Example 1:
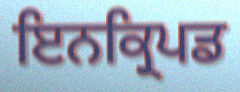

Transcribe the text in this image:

ਇਨਕ੍ਰਿਪਡ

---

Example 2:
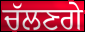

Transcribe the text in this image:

ਚੱਲਣਗੇ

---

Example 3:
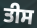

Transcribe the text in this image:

ਤੀਸ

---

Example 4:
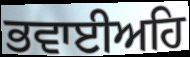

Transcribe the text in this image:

ਭਵਾਈਅਹਿ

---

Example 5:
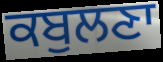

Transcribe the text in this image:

ਕਬੁਲਣਾ